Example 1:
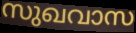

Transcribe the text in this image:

സുഖവാസ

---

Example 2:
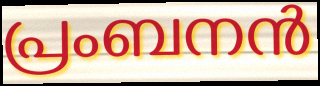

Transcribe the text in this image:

പ്രംബനൻ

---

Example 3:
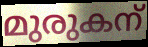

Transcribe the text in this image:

മുരുകന്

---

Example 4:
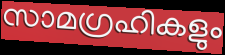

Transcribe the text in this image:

സാമഗ്രഹികളും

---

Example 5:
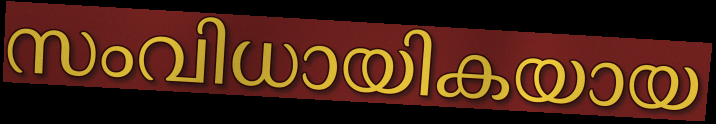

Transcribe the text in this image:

സംവിധായികയായ